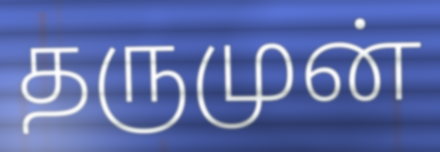
தருமுன்